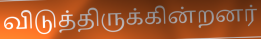
விடுத்திருக்கின்றனர்